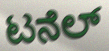
ಟನೆಲ್